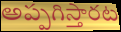
అప్పగిస్తారట